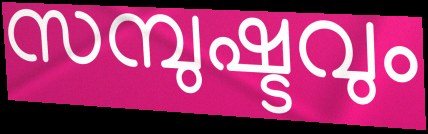
സമ്പുഷ്ടവും